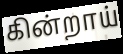
கின்றாய்